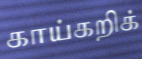
காய்கறிக்